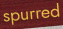
spurred